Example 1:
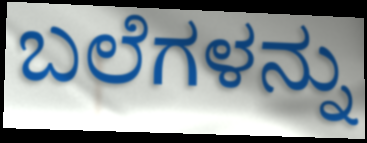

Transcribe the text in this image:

ಬಲೆಗಳನ್ನು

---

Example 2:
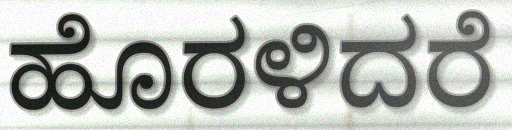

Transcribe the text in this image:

ಹೊರಳಿದರೆ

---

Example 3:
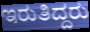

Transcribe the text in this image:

ಇರುತಿದ್ದರು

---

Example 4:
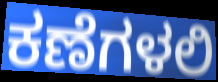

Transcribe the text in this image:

ಕಣೆಗಳಲಿ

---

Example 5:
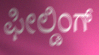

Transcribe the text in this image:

ಫೀಲ್ಡಿಂಗ್